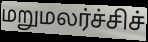
மறுமலர்ச்சிச்